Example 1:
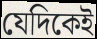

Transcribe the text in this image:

যেদিকেই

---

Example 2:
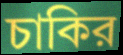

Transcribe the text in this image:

চাকির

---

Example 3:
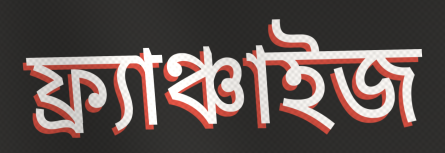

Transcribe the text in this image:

ফ্র্যাঞ্চাইজ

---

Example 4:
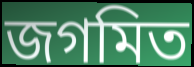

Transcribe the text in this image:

জগমিত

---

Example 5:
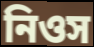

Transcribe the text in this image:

নিওস